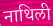
नाथिली